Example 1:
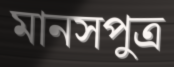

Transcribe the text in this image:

মানসপুত্ৰ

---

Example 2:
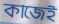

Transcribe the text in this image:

কাজেই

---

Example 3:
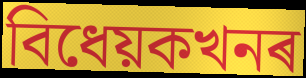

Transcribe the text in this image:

বিধেয়কখনৰ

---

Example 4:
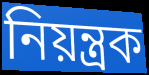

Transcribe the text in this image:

নিয়ন্ত্ৰক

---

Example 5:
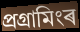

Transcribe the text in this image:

প্ৰগ্ৰামিংৰ